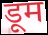
डूम